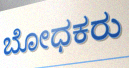
ಬೋಧಕರು